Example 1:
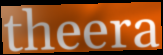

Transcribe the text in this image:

theera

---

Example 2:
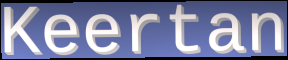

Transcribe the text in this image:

Keertan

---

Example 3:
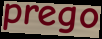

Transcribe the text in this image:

prego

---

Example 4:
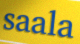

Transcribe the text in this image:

saala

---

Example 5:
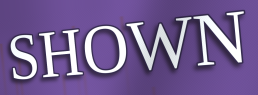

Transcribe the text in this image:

SHOWN